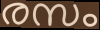
രസം